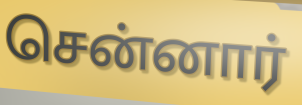
சென்னார்